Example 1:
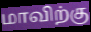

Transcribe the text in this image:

மாவிற்கு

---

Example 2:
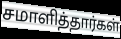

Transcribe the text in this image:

சமாளித்தார்கள்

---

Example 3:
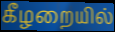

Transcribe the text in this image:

கீழறையில்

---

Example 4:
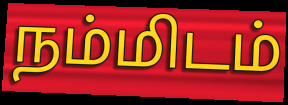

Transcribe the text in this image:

நம்மிடம்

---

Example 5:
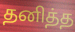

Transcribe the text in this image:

தனித்த